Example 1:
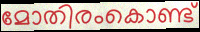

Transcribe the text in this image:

മോതിരംകൊണ്ട്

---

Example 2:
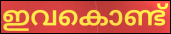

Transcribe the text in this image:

ഇവകൊണ്ട്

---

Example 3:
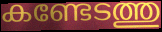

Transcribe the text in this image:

കണ്ടേടത്തു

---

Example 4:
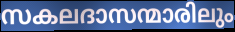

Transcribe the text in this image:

സകലദാസന്മാരിലും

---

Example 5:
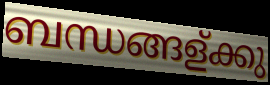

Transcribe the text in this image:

ബന്ധങ്ങള്ക്കു